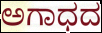
ಅಗಾಧದ